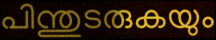
പിന്തുടരുകയും